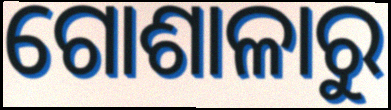
ଗୋଶାଳାରୁ